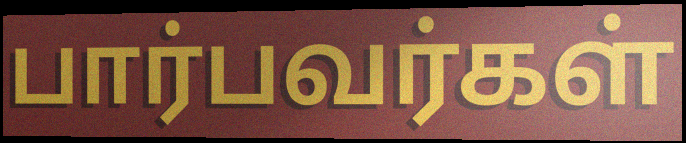
பார்பவர்கள்